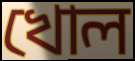
খোল